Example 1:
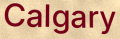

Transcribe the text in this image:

Calgary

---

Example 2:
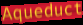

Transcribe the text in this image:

Aqueduct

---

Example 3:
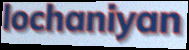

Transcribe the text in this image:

lochaniyan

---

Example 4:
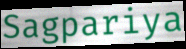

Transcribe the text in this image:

Sagpariya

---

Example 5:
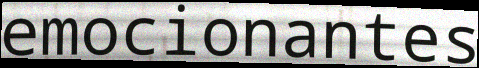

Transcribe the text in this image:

emocionantes